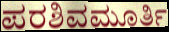
ಪರಶಿವಮೂರ್ತಿ